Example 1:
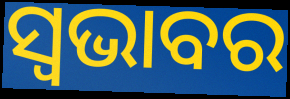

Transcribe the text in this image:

ସ୍ଵଭାବର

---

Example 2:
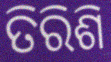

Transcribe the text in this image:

ତିରିଶି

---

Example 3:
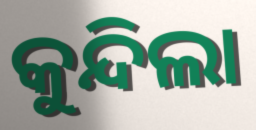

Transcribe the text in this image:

କୁନ୍ଦିଲା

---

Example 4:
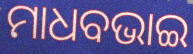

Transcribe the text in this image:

ମାଧବଭାଇ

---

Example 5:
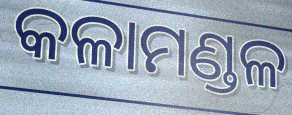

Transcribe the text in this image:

କଳାମଣ୍ଡଳ